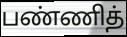
பண்ணித்